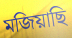
মজিয়াছি